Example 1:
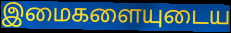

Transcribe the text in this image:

இமைகளையுடைய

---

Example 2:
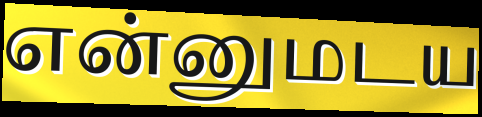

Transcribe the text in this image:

என்னுமடய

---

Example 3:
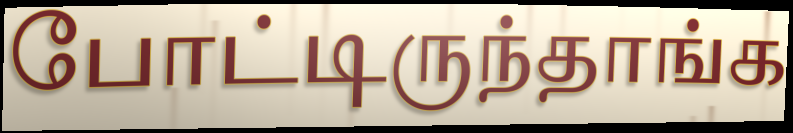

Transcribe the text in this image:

போட்டிருந்தாங்க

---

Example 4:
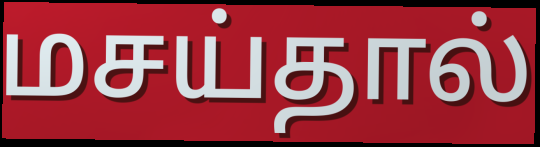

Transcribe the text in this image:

மசய்தால்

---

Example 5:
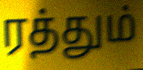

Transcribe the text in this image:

ரத்தும்